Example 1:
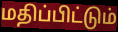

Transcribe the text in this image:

மதிப்பிட்டும்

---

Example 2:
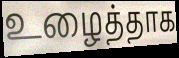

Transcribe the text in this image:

உழைத்தாக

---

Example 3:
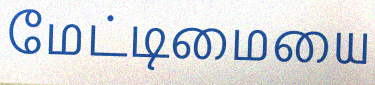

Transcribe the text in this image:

மேட்டிமையை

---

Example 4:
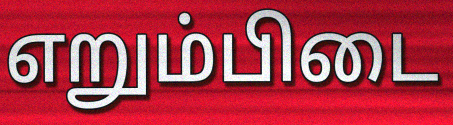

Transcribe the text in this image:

எறும்பிடை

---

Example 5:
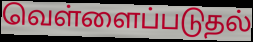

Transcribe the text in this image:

வெள்ளைப்படுதல்